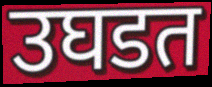
उघडत